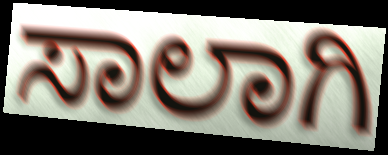
ಸಾಲಾಗಿ